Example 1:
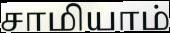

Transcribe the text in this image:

சாமியாம்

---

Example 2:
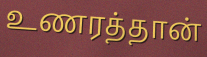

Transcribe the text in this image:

உணரத்தான்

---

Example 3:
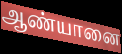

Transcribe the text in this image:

ஆண்யானை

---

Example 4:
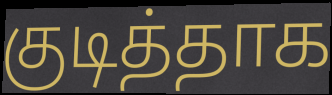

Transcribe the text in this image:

குடித்தாக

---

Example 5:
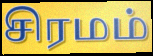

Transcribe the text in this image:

சிரமம்